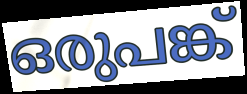
ഒരുപങ്ക്